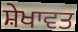
ਸ਼ੇਖਾਵਤ